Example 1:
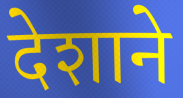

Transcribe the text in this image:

देशाने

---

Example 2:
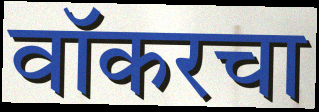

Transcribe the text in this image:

वॉकरचा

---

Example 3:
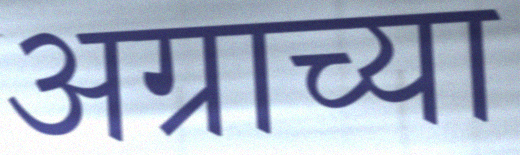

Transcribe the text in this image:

अग्राच्या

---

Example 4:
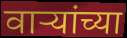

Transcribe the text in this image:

वाऱ्यांच्या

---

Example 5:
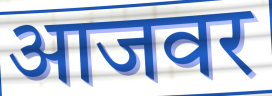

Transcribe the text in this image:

आजवर